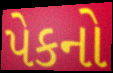
પેકનો